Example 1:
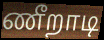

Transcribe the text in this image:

ணீறாடி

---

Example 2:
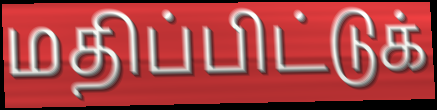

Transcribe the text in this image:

மதிப்பிட்டுக்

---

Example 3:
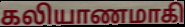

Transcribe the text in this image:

கலியாணமாகி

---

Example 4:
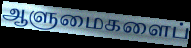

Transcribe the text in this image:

ஆளுமைகளைப்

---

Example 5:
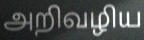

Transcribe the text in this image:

அறிவழிய